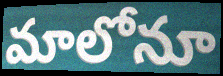
మాలోనూ